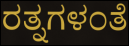
ರತ್ನಗಳಂತೆ